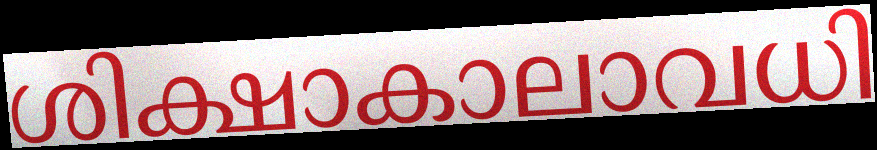
ശിക്ഷാകാലാവധി